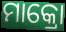
ମାକ୍ରୋ